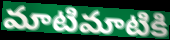
మాటిమాటికి